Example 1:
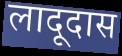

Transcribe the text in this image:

लादूदास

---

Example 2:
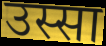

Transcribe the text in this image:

उस्सा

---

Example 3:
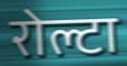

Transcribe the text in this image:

रोल्टा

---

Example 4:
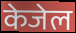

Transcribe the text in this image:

केजेल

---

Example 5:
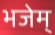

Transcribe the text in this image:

भजेम्